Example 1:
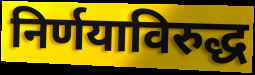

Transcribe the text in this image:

निर्णयाविरुद्ध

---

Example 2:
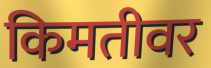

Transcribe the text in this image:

किमतीवर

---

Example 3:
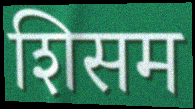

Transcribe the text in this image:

शिसम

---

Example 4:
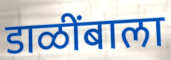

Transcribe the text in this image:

डाळींबाला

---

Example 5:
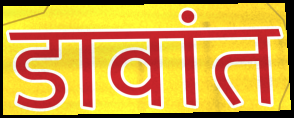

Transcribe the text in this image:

डावांत